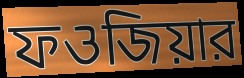
ফওজিয়ার